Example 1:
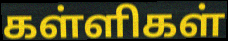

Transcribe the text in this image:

கள்ளிகள்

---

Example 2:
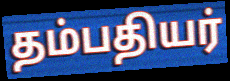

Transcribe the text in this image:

தம்பதியர்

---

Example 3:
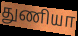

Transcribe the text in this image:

துணியா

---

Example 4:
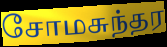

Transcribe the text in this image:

சோமசுந்தர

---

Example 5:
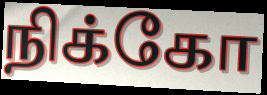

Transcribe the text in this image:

நிக்கோ